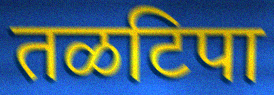
तळटिपा